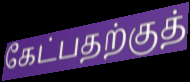
கேட்பதற்குத்